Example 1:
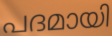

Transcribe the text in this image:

പദമായി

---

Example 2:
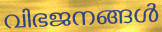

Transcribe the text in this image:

വിഭജനങ്ങൾ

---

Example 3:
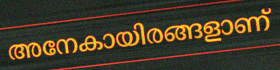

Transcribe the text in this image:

അനേകായിരങ്ങളാണ്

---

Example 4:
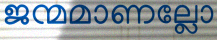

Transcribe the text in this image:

ജന്മമാണല്ലോ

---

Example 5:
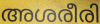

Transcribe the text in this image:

അശരീരി